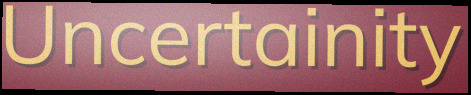
Uncertainity